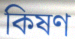
কিষণ